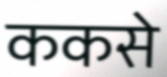
ककसे